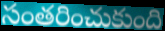
సంతరించుకుంది